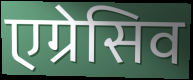
एग्रेसिव